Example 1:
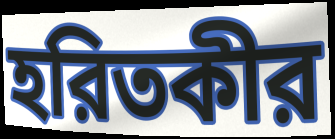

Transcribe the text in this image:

হরিতকীর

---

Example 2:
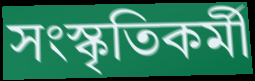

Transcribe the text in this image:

সংস্কৃতিকর্মী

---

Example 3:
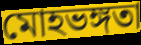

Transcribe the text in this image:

মোহভঙ্গতা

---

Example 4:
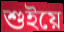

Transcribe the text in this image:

শুইয়ে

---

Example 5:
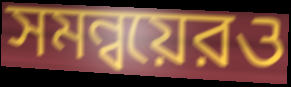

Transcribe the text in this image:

সমন্বয়েরও